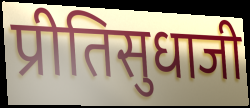
प्रीतिसुधाजी